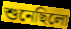
শুনেছিলো